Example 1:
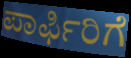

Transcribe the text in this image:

ಪಾರ್ಫಿರಿಗೆ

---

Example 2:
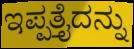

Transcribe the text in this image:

ಇಪ್ಪತ್ತೈದನ್ನು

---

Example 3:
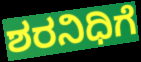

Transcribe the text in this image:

ಶರನಿಧಿಗೆ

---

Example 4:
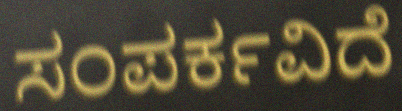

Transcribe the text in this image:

ಸಂಪರ್ಕವಿದೆ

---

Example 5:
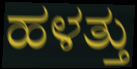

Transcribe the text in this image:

ಹಳತ್ತು